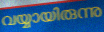
വയ്യായിരുന്നു